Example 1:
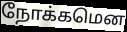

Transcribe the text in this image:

நோக்கமென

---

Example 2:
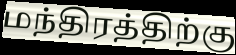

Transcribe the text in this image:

மந்திரத்திற்கு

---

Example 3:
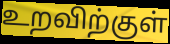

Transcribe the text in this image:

உறவிற்குள்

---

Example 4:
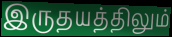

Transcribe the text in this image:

இருதயத்திலும்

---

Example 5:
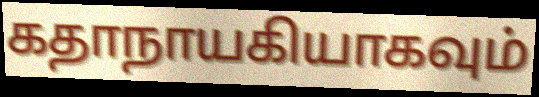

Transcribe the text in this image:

கதாநாயகியாகவும்